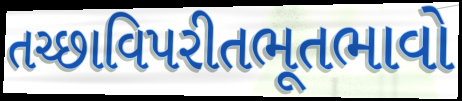
તચ્છાવિપરીતભૂતભાવો